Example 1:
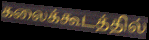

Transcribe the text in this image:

கலைக்கூடத்தில்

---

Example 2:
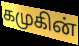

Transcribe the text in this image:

கமுகின்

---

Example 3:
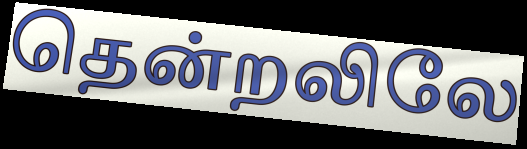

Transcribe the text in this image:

தென்றலிலே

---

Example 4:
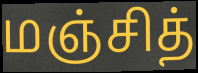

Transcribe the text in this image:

மஞ்சித்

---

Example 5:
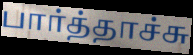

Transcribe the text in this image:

பார்த்தாச்சு